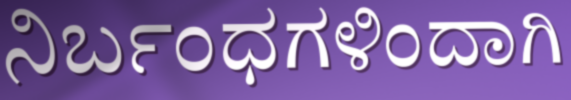
ನಿರ್ಬಂಧಗಳಿಂದಾಗಿ